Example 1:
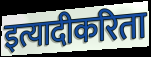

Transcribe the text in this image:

इत्यादीकरिता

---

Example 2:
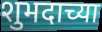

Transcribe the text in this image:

शुभदाच्या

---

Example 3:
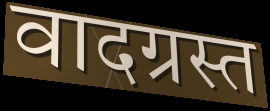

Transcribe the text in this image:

वादग्रस्त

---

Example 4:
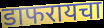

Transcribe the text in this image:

डाफरायचा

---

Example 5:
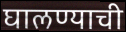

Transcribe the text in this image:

घालण्याची